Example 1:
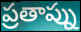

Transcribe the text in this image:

ప్రతాప్ను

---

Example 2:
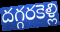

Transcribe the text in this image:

దగ్గరకెళ్లి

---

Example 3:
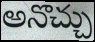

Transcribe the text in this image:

అనొచ్చు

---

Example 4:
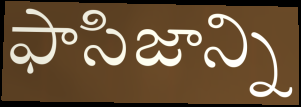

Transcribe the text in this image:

ఫాసిజాన్ని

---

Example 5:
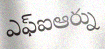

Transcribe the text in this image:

ఎఫ్ఐఆర్ను